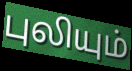
புலியும்